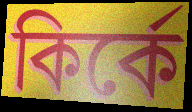
কির্কে